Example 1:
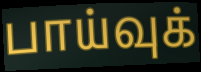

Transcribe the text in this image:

பாய்வுக்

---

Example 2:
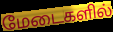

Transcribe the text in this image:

மேடைகளில்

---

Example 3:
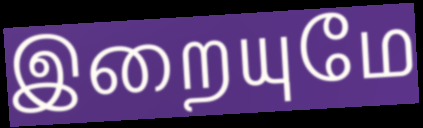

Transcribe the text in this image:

இறையுமே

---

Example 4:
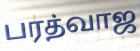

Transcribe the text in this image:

பரத்வாஜ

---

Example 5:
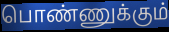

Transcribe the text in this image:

பொண்ணுக்கும்